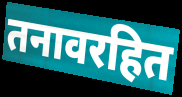
तनावरहित